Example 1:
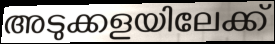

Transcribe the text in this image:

അടുക്കളയിലേക്ക്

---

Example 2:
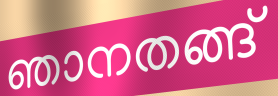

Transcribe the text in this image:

ഞാനതങ്ങ്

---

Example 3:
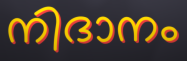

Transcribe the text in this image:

നിദാനം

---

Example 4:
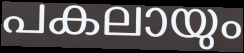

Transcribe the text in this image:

പകലായും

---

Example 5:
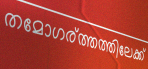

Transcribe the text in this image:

തമോഗര്ത്തത്തിലേക്ക്